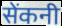
सेंकनी